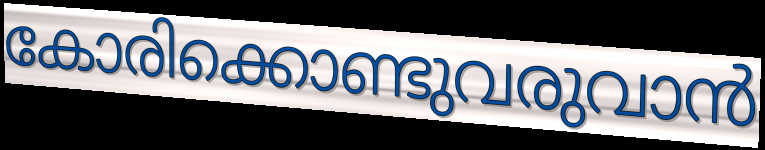
കോരിക്കൊണ്ടുവരുവാൻ